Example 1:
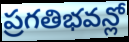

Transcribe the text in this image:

ప్రగతిభవన్లో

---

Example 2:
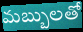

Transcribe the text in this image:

మబ్బులతో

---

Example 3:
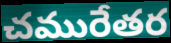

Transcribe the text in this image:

చమురేతర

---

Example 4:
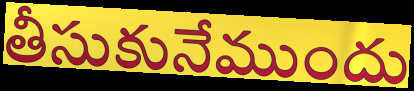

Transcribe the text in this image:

తీసుకునేముందు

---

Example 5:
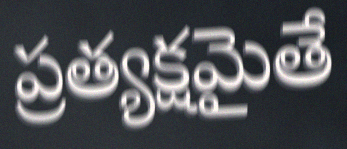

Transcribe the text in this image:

ప్రత్యక్షమైతే